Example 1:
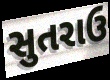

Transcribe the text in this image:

સુતરાઉ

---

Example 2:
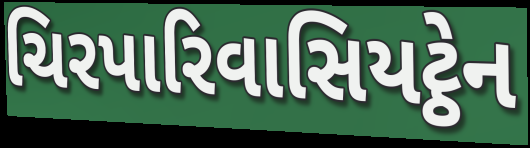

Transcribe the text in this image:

ચિરપારિવાસિયટ્ઠેન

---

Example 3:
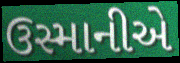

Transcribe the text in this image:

ઉસ્માનીએ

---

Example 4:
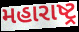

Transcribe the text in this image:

મહારાષ્ટ્ર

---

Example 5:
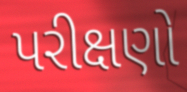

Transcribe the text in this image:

પરીક્ષણો